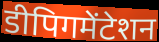
डीपिगमेंटेशन